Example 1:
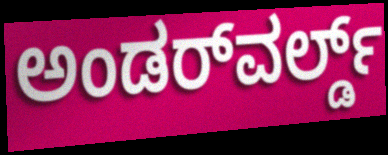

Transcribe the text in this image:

ಅಂಡರ್‌ವರ್ಲ್ಡ್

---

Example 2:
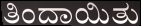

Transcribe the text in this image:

ತಿಂದಾಯಿತು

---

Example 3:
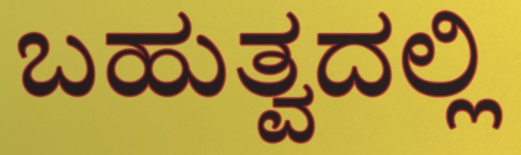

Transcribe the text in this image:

ಬಹುತ್ವದಲ್ಲಿ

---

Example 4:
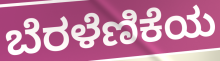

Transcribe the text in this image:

ಬೆರಳೆಣಿಕೆಯ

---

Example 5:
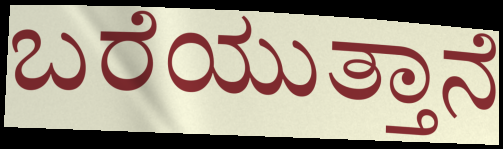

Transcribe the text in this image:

ಬರೆಯುತ್ತಾನೆ